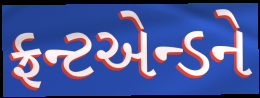
ફ્રન્ટએન્ડને